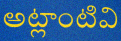
అట్లాంటివి